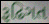
રૂઢિગત